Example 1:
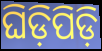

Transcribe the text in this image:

ଘିଡ଼ିପିଡ଼ି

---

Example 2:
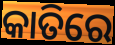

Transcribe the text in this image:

କାତିରେ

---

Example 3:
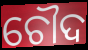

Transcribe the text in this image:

ଚୌଦ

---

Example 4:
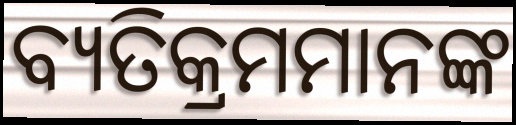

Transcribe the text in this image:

ବ୍ୟତିକ୍ରମମାନଙ୍କ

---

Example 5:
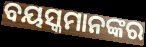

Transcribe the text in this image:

ବୟସ୍କମାନଙ୍କର